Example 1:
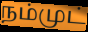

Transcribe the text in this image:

நம்முட்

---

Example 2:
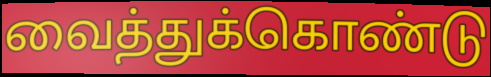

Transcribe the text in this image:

வைத்துக்கொண்டு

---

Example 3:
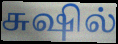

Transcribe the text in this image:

சுஷில்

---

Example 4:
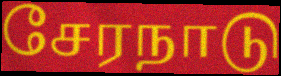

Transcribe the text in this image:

சேரநாடு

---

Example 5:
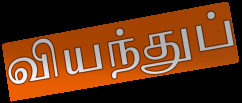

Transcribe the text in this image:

வியந்துப்